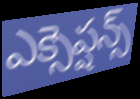
ఎక్సెప్షన్స్